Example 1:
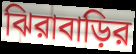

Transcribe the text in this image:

ঝিরাবাড়ির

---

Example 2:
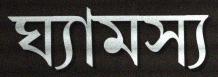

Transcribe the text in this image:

ঘ্যামস্য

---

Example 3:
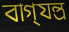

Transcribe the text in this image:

বাগ্‌যন্ত্র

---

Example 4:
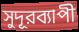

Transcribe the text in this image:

সুদূরব্যাপী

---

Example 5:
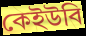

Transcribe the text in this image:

কেইউবি